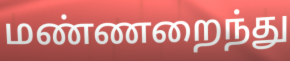
மண்ணறைந்து